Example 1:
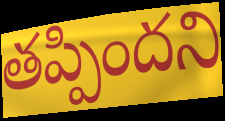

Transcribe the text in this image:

తప్పిందని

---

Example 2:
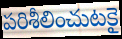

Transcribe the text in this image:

పరిశీలించుటకై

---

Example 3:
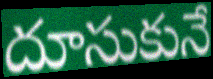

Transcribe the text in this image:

దూసుకునే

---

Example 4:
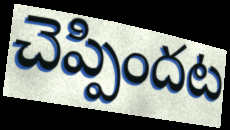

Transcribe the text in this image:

చెప్పిందట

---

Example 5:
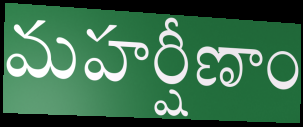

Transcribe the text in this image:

మహర్షీణాం